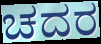
ಚದರ